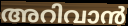
അറിവാൻ